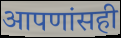
आपणांसही